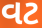
વટ